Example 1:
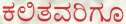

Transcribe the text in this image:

ಕಲಿತವರಿಗೂ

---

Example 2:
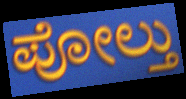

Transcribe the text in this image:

ಪೋಲ್ತು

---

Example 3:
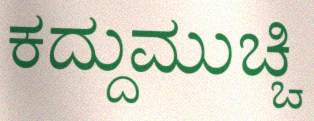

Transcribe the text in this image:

ಕದ್ದುಮುಚ್ಚಿ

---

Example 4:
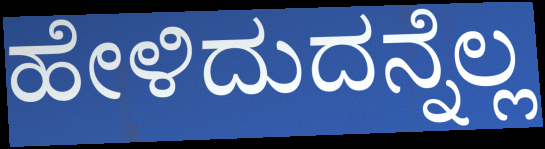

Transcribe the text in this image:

ಹೇಳಿದುದನ್ನೆಲ್ಲ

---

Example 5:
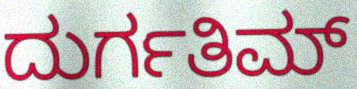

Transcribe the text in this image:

ದುರ್ಗತಿಮ್